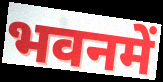
भवनमें